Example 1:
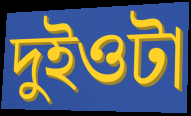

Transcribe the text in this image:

দুইওটা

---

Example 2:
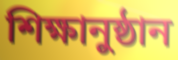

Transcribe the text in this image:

শিক্ষানুষ্ঠান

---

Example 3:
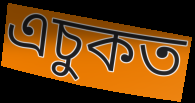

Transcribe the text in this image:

এচুকত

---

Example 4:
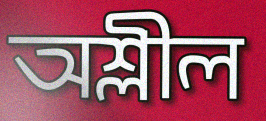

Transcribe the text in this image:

অশ্লীল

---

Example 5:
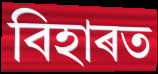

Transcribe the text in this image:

বিহাৰত